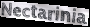
Nectarinia